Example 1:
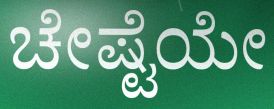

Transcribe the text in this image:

ಚೇಷ್ಟೆಯೇ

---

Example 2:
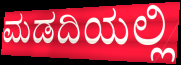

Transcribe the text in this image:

ಮಡದಿಯಲ್ಲಿ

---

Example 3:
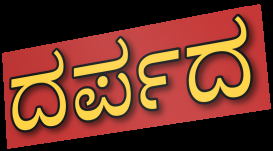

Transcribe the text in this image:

ದರ್ಪದ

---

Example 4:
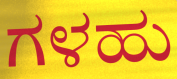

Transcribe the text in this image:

ಗಳಹು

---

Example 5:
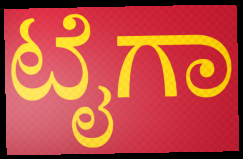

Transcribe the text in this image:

ಟೈಗಾ